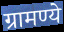
ग्रामण्ये